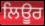
ਲਿਊਰ